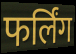
फर्लिंग